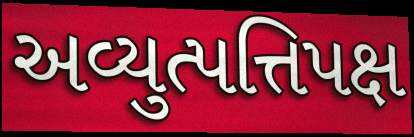
અવ્યુત્પત્તિપક્ષ